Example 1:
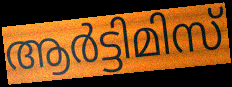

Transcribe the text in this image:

ആർട്ടിമിസ്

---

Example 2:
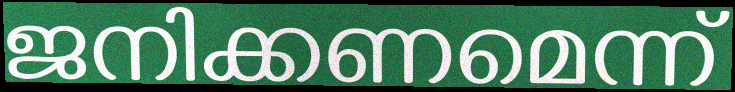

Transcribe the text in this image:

ജനിക്കണമെന്ന്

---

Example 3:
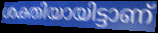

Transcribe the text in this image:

ശക്തിയായിട്ടാണ്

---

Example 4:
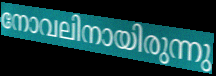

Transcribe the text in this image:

നോവലിനായിരുന്നു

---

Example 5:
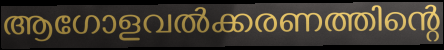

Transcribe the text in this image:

ആഗോളവൽക്കരണത്തിന്റെ